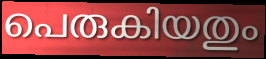
പെരുകിയതും